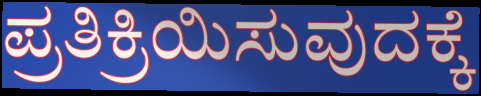
ಪ್ರತಿಕ್ರಿಯಿಸುವುದಕ್ಕೆ